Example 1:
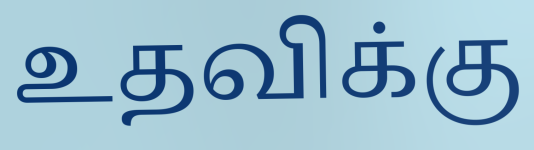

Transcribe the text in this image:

உதவிக்கு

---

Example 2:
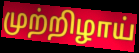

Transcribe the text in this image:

முற்றிழாய்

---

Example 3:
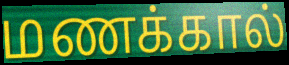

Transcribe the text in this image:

மணக்கால்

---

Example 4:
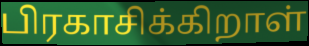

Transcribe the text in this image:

பிரகாசிக்கிறாள்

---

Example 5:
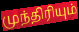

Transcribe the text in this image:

முந்திரியும்